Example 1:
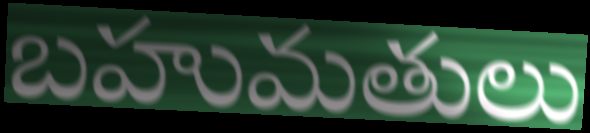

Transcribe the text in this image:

బహుమతులు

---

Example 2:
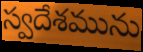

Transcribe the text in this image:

స్వదేశమును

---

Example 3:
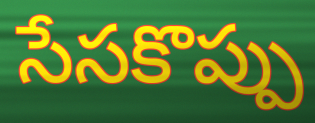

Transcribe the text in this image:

సేసకొప్పు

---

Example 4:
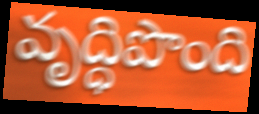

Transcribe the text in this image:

వృద్ధిపొంది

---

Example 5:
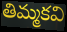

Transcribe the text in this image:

తిమ్మకవి